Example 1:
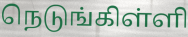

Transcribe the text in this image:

நெடுங்கிள்ளி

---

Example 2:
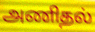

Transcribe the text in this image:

அணிதல்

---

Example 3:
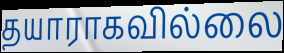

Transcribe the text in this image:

தயாராகவில்லை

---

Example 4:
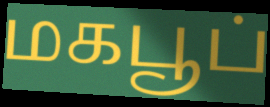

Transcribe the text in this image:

மகபூப்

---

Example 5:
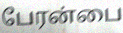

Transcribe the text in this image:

பேரன்பை